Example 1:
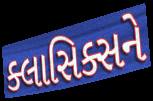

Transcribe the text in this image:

ક્લાસિક્સને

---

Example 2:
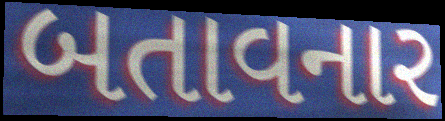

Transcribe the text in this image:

બતાવનાર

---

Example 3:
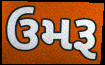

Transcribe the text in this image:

ઉમરૂ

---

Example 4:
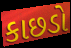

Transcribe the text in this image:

કાછડો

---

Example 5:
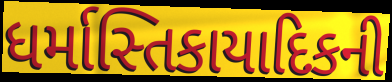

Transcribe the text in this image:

ધર્માસ્તિકાયાદિકની